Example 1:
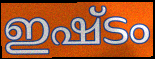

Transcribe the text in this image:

ഇഷ്ടം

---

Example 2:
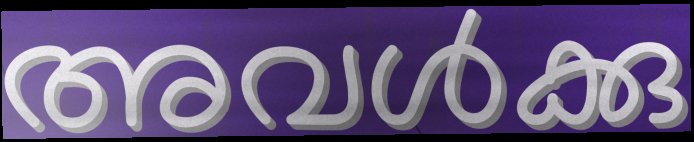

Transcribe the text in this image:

അവൾക്കു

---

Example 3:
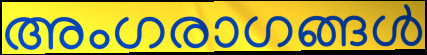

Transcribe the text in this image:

അംഗരാഗങ്ങൾ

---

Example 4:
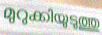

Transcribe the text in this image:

മുറുക്കിയുടുത്തു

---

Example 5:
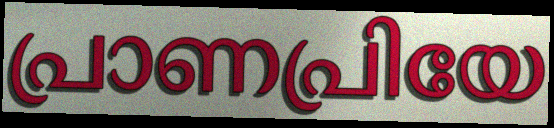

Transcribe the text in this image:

പ്രാണപ്രിയേ